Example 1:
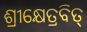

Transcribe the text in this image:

ଶ୍ରୀକ୍ଷେତ୍ରବିତ୍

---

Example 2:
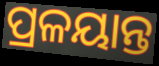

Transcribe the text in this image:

ପ୍ରଳୟାନ୍ତ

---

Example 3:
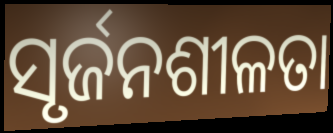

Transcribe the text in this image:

ସୃର୍ଜନଶୀଳତା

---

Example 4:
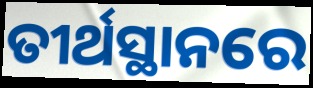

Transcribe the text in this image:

ତୀର୍ଥସ୍ଥାନରେ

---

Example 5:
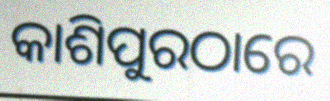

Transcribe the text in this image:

କାଶିପୁରଠାରେ